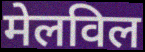
मेलविल